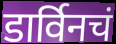
डार्विनचं